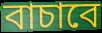
বাচাবে